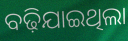
ବଢ଼ିଯାଇଥିଲା